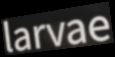
larvae